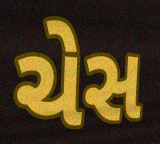
ચેસ